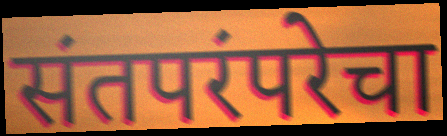
संतपरंपरेचा